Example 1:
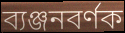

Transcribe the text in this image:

ব্যঞ্জনবৰ্ণক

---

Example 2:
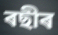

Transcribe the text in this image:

ৰছীৰ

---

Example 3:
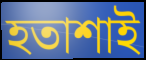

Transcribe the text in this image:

হতাশাই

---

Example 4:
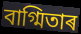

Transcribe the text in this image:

বাগ্মিতাৰ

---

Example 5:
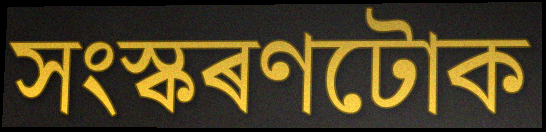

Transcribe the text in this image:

সংস্কৰণটোক